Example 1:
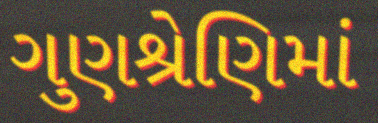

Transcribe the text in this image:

ગુણશ્રેણિમાં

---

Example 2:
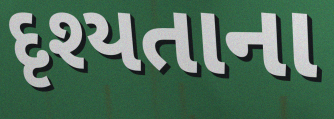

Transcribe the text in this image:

દૃશ્યતાના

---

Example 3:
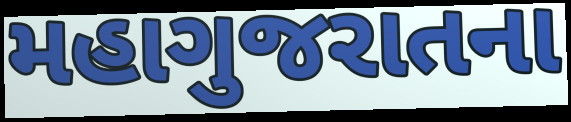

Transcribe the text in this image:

મહાગુજરાતના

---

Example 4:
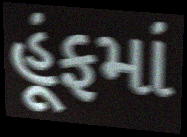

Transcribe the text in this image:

હૂંફમાં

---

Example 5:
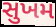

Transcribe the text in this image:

સુખમ